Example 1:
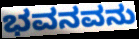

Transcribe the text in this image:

ಭವನವನು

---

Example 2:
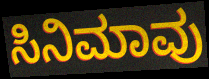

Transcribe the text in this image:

ಸಿನಿಮಾವು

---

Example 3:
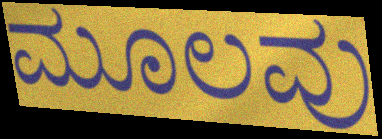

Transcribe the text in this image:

ಮೂಲವು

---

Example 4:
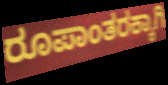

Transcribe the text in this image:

ರೂಪಾಂತರಕ್ಕಾಗಿ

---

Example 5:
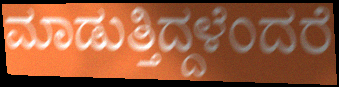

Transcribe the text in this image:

ಮಾಡುತ್ತಿದ್ದಳೆಂದರೆ